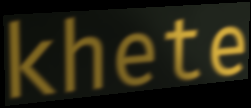
khete